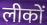
लीकों